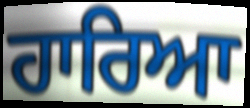
ਹਾਰਿਆ